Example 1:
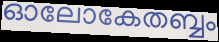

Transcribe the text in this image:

ഓലോകേതബ്ബം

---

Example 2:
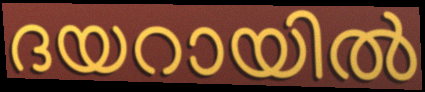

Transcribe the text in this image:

ദയറായിൽ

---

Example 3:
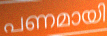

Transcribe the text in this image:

പണമായി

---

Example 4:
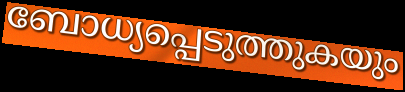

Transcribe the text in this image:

ബോധ്യപ്പെടുത്തുകയും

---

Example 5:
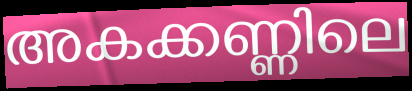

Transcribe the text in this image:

അകക്കണ്ണിലെ